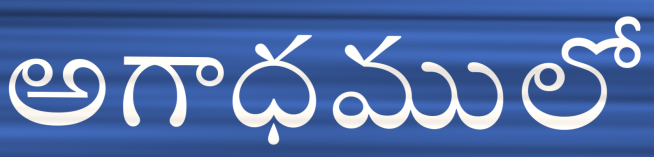
అగాధములో